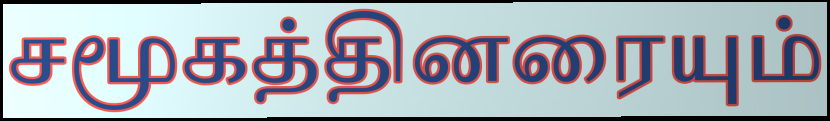
சமூகத்தினரையும்